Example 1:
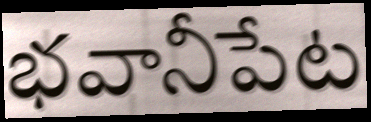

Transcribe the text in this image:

భవానీపేట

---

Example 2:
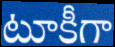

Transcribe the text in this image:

టూకీగా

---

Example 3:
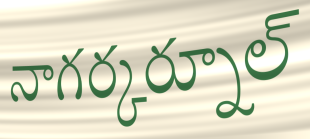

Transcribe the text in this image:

నాగర్కర్నూల్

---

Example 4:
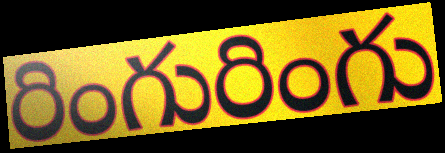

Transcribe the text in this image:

రింగురింగు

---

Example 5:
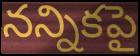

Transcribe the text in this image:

నన్నికపై